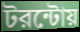
টরন্টোয়